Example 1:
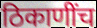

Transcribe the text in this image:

ठिकाणींच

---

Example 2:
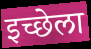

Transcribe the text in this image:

इच्छेला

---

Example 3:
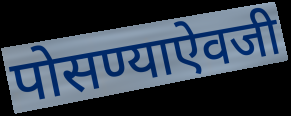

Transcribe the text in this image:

पोसण्याऐवजी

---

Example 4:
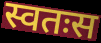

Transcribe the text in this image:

स्वतःस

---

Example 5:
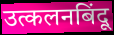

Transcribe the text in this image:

उत्कलनबिंदू